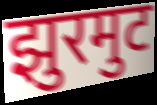
झुरमुट